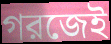
গরজেই